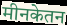
मीनकेतन